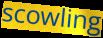
scowling